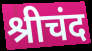
श्रीचंद